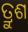
ତ୍ରୁଶ